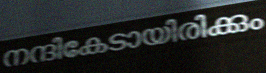
നന്ദികേടായിരിക്കും